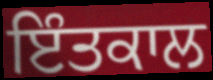
ਇੰਤਕਾਲ